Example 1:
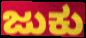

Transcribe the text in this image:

ಜುಕು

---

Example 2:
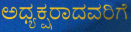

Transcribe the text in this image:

ಅಧ್ಯಕ್ಷರಾದವರಿಗೆ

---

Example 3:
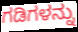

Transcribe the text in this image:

ಗಡಿಗಳನ್ನು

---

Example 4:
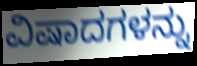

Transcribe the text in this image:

ವಿಷಾದಗಳನ್ನು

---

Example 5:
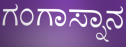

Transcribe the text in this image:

ಗಂಗಾಸ್ನಾನ